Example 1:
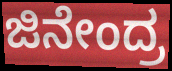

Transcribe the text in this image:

ಜಿನೇಂದ್ರ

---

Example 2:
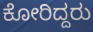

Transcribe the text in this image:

ಕೋರಿದ್ದರು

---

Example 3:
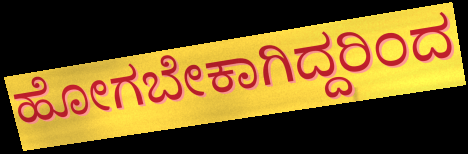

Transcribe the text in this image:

ಹೋಗಬೇಕಾಗಿದ್ದರಿಂದ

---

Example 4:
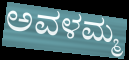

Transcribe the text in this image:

ಅವಳಮ್ಮ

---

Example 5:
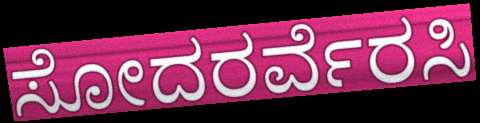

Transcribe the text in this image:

ಸೋದರರ್ವೆರಸಿ